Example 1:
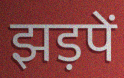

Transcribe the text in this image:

झड़पें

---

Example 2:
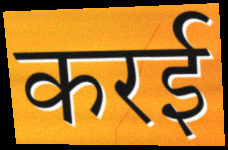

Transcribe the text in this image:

करई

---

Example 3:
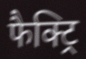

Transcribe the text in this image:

फैक्ट्रि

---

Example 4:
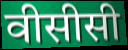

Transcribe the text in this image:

वीसीसी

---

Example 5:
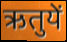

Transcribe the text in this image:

ऋतुयें